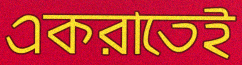
একরাতেই